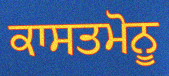
ਕਾਸਤਮੋਨੂ